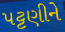
પટ્ટણીને